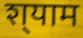
श्याम